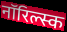
नॉरिल्स्क